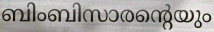
ബിംബിസാരന്റെയും